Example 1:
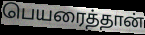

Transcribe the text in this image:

பெயரைத்தான்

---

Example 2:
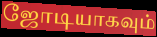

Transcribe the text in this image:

ஜோடியாகவும்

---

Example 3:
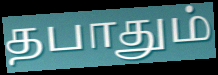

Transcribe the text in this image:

தபாதும்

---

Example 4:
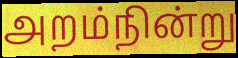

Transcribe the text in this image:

அறம்நின்று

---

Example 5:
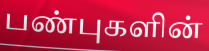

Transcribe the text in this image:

பண்புகளின்